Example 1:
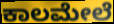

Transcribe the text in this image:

ಕಾಲಮೇಲೆ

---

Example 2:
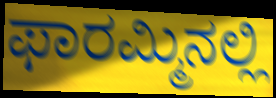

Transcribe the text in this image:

ಫಾರಮ್ಮಿನಲ್ಲಿ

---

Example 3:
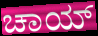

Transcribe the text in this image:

ಚಾಯ್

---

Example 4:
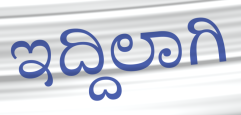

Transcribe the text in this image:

ಇದ್ದಿಲಾಗಿ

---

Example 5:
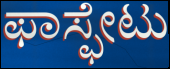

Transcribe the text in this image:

ಫಾಸ್ಫೇಟು